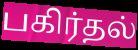
பகிர்தல்